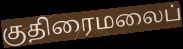
குதிரைமலைப்